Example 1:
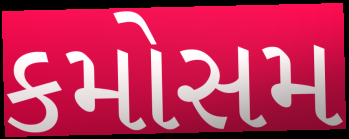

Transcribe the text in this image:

કમોસમ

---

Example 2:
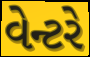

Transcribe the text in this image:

વેન્ટરે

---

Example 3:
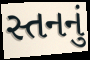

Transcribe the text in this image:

સ્તનનું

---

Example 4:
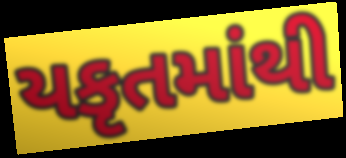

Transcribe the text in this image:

યકૃતમાંથી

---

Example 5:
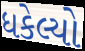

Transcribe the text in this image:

ધકેલ્યો